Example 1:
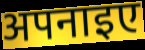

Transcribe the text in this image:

अपनाइए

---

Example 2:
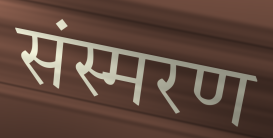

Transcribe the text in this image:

संस्मरण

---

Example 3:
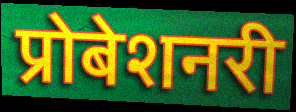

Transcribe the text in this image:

प्रोबेशनरी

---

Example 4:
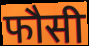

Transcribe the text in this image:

फौसी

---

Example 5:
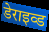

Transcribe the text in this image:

डेराइव्ड